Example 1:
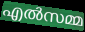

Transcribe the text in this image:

എൽസമ്മ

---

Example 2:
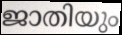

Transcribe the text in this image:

ജാതിയും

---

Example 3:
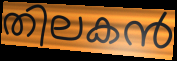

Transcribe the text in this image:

തിലകൻ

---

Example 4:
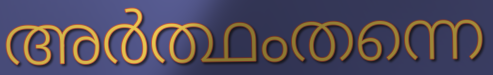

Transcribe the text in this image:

അർത്ഥംതന്നെ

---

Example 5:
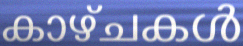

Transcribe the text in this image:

കാഴ്‌ചകൾ